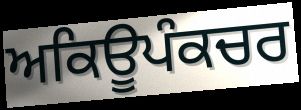
ਅਕਿਊਪੰਕਚਰ